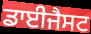
ਡਾਈਜੈਸਟ